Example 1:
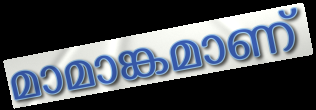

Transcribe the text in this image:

മാമാങ്കമാണ്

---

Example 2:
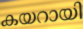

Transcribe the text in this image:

കയറായി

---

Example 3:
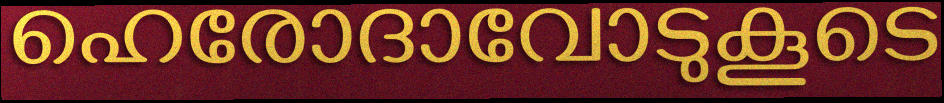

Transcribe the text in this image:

ഹെരോദാവോടുകൂടെ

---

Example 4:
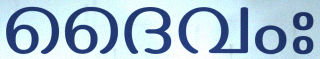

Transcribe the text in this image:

ദൈവംഃ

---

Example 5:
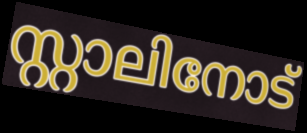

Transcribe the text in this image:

സ്റ്റാലിനോട്